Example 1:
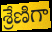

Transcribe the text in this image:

శ్రేణిగా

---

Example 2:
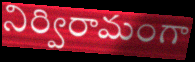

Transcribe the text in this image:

నిర్విరామంగా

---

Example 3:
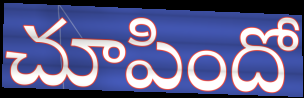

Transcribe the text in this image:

చూపిందో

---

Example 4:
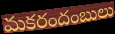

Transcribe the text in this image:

మకరందంబులు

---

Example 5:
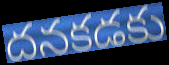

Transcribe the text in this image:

దనకడకు